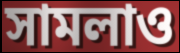
সামলাও